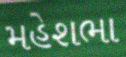
મહેશભા